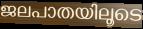
ജലപാതയിലൂടെ